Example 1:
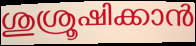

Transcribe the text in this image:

ശുശ്രൂഷിക്കാൻ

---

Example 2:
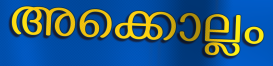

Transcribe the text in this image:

അക്കൊല്ലം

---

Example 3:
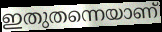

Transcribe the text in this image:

ഇതുതന്നെയാണ്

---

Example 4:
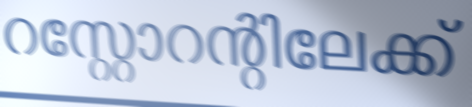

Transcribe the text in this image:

റസ്റ്റോറന്റിലേക്ക്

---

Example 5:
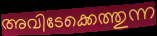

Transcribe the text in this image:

അവിടേക്കെത്തുന്ന